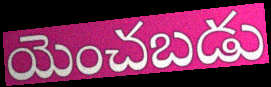
యెంచబడు